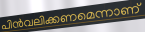
പിൻവലിക്കണമെന്നാണ്